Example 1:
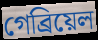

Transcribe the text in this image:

গেব্রিয়েল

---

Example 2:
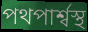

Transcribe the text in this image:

পথপার্শ্বস্থ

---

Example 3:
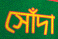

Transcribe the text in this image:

সোঁদা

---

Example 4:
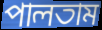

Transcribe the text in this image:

পালতাম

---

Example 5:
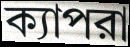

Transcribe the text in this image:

ক্যাপরা